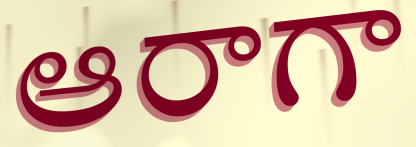
ఆరాగా